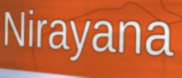
Nirayana